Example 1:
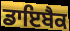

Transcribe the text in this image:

ਡਾਇਬੈਕ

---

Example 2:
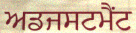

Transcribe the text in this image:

ਅਡਜਸਟਮੈਂਟ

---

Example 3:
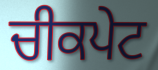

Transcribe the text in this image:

ਚੀਕਪੇਟ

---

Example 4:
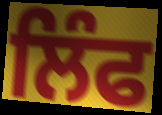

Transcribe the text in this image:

ਲਿੰਫ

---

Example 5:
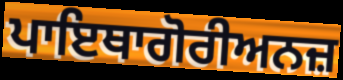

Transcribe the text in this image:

ਪਾਇਥਾਗੋਰੀਅਨਜ਼